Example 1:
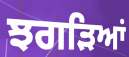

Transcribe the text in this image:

ਝਗੜਿਆਂ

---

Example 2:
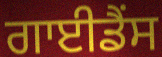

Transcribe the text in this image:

ਗਾਈਡੈਂਸ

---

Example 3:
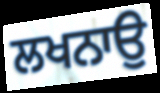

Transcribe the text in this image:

ਲਖਨਾਉ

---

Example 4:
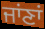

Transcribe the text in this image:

ਜਾਂਣਾਂ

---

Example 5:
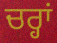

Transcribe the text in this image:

ਚਰ੍ਹਾਂ